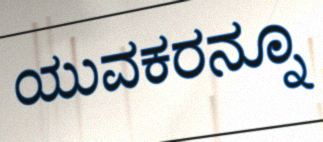
ಯುವಕರನ್ನೂ